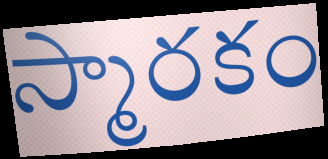
స్మారకం